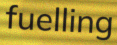
fuelling